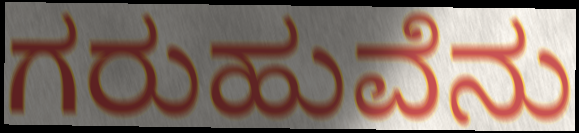
ಗರುಹುವೆನು